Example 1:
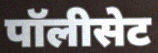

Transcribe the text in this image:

पॉलीसेट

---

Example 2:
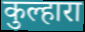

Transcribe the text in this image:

कुल्हारा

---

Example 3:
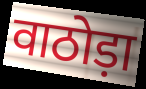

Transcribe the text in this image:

वाठोड़ा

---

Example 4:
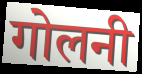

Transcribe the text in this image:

गोलनी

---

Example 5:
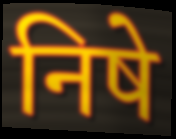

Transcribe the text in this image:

निषे